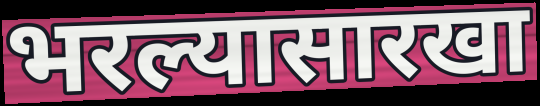
भरल्यासारखा